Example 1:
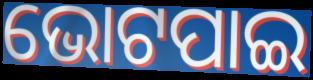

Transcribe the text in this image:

ଭୋଟପାଇ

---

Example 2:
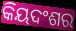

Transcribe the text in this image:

କିୟଦଂଶର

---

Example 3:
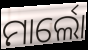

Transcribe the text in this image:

ମାର୍ଲୋ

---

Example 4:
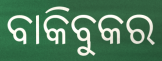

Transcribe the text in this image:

ବାକିବୁକର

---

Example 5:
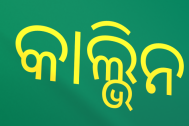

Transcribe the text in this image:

କାଲ୍ଭିନ